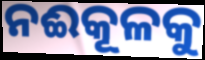
ନଈକୂଳକୁ